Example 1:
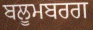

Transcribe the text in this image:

ਬਲੂਮਬਰਗ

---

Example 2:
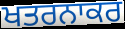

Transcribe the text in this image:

ਖਤਰਨਾਕਰ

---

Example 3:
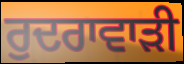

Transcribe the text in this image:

ਰੁਦਰਾਵਾੜੀ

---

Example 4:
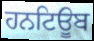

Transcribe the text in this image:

ਹਨਟਿਊਬ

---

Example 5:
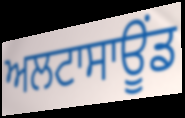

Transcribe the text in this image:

ਅਲਟਾਸਾਊਂਡ